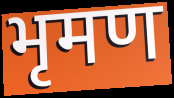
भृमण